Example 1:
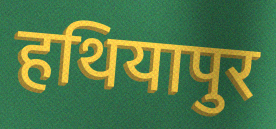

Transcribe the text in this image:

हथियापुर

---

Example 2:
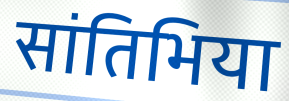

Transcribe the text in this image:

सांतिभिया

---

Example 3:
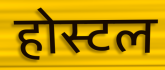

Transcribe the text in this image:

होस्टल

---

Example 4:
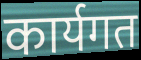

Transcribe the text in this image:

कार्यगत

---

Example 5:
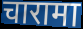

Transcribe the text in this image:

चारामा